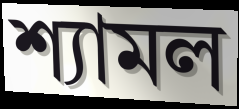
শ্যামল